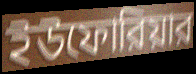
ইউফোরিয়ার